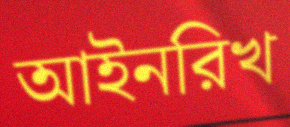
আইনরিখ